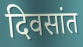
दिवसांत